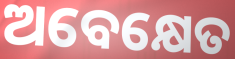
ଅବେକ୍ଷେତ